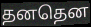
தனதென